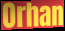
Orhan